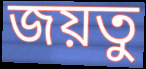
জয়তু